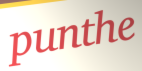
punthe